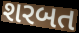
શરબત